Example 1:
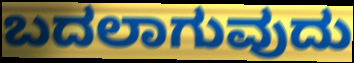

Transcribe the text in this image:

ಬದಲಾಗುವುದು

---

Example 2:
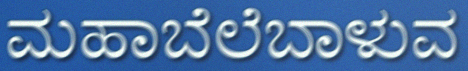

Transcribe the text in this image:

ಮಹಾಬೆಲೆಬಾಳುವ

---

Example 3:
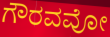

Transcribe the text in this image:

ಗೌರವವೋ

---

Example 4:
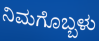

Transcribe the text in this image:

ನಿಮಗೊಬ್ಬಳು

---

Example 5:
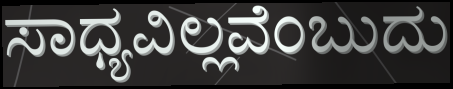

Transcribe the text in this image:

ಸಾಧ್ಯವಿಲ್ಲವೆಂಬುದು